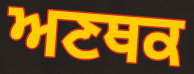
ਅਣਥਕ